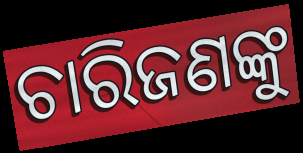
ଚାରିଜଣଙ୍କୁ